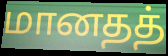
மானதத்